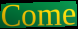
Come